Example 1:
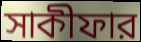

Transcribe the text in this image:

সাকীফার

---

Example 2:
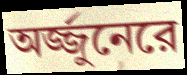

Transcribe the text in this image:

অর্জ্জুনেরে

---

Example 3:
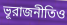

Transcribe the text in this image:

ভূরাজনীতিও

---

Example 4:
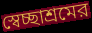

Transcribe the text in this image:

স্বেচ্ছাশ্রমের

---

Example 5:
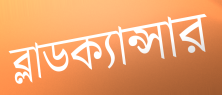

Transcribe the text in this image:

ব্লাডক্যান্সার